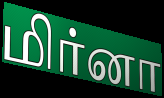
மிர்னா